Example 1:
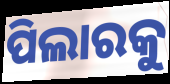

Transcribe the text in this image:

ପିଲାରକୁ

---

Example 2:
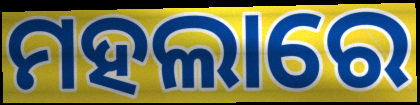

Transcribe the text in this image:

ମହଲାରେ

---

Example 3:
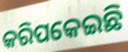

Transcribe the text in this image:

କରିପକେଇଛି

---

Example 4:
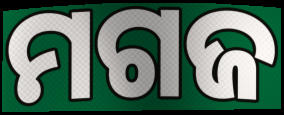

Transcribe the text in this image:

ମଗଜ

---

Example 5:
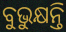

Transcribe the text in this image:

ବୁଭୁକ୍ଷନ୍ତି